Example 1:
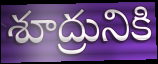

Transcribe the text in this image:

శూద్రునికి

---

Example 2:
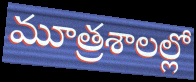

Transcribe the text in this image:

మూత్రశాలల్లో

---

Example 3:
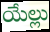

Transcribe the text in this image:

యేల్లు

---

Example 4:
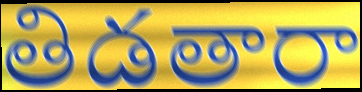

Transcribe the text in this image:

తిడతారా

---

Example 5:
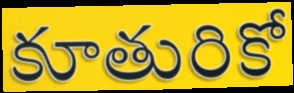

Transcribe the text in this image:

కూతురికో